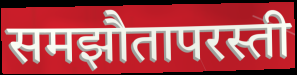
समझौतापरस्ती